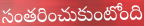
సంతరించుకుంటోంది